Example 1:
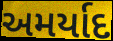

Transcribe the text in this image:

અમર્યાદ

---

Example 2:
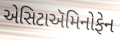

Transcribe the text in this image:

એસિટાઍમિનોફેન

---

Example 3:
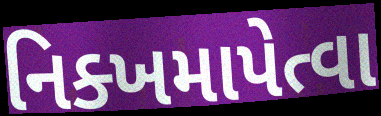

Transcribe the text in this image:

નિક્ખમાપેત્વા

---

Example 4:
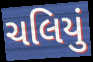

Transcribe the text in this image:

ચલિયું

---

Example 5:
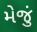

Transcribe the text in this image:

મેજું